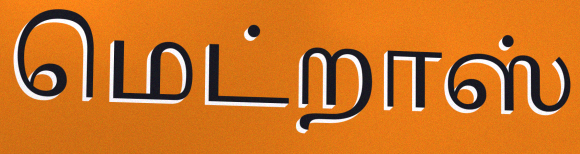
மெட்றாஸ்